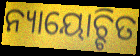
ନ୍ୟାୟୋଚ୍ଚିତ